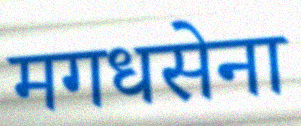
मगधसेना